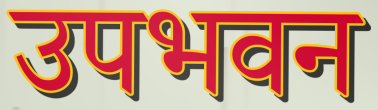
उपभवन